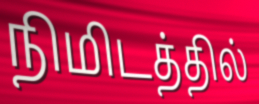
நிமிடத்தில்